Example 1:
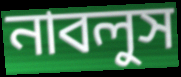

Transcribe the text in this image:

নাবলুস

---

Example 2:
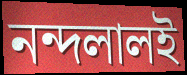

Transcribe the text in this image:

নন্দলালই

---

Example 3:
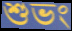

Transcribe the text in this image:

শুভং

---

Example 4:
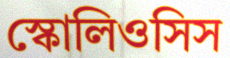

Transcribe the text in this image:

স্কোলিওসিস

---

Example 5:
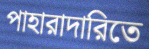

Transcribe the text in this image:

পাহারাদারিতে